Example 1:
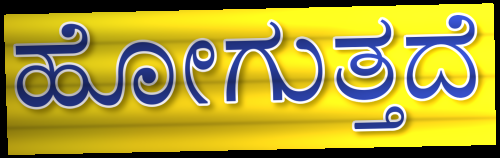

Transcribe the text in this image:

ಹೋಗುತ್ತದೆ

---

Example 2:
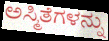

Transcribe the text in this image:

ಅಸ್ಮಿತೆಗಳನ್ನು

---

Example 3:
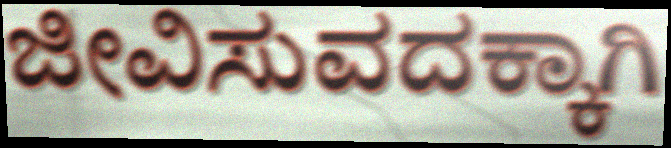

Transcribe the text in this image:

ಜೀವಿಸುವದಕ್ಕಾಗಿ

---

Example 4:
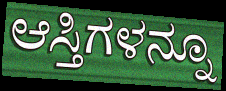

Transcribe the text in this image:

ಆಸ್ತಿಗಳನ್ನೂ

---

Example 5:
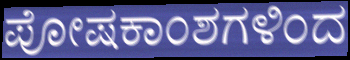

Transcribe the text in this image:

ಪೋಷಕಾಂಶಗಳಿಂದ